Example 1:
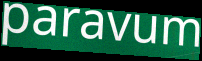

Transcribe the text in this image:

paravum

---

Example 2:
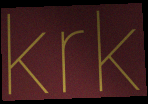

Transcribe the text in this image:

krk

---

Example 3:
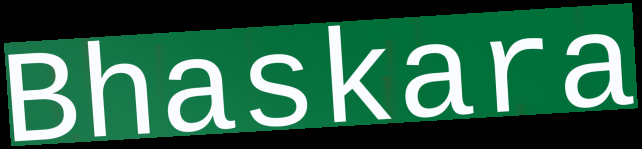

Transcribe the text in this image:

Bhaskara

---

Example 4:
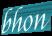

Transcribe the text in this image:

bhon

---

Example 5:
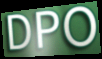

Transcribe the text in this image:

DPO